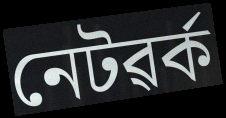
নেটৱৰ্ক